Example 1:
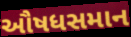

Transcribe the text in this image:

ઔષધસમાન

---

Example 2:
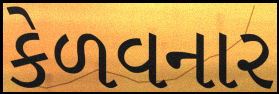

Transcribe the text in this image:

કેળવનાર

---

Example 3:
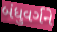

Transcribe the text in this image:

બંધુવર્ગને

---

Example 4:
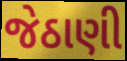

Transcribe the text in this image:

જેઠાણી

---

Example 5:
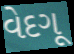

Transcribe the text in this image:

વેદગૂ